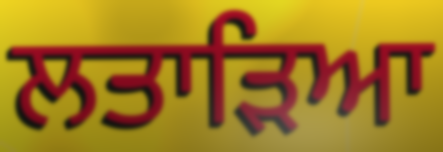
ਲਤਾੜਿਆ